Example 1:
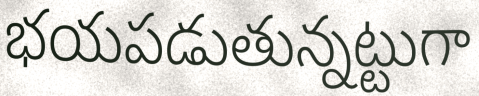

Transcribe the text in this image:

భయపడుతున్నట్టుగా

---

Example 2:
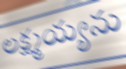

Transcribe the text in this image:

లక్ష్మయ్యను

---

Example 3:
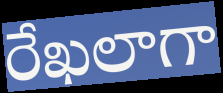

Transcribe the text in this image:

రేఖలాగా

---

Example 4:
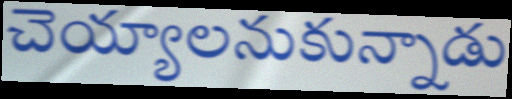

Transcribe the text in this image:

చెయ్యాలనుకున్నాడు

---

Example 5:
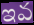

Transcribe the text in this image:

ఇవ